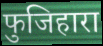
फुजिहारा